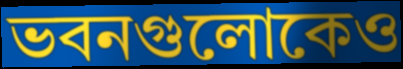
ভবনগুলোকেও